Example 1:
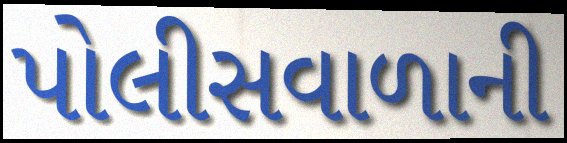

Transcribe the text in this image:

પોલીસવાળાની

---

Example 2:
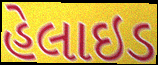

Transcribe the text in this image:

હેલાઇડ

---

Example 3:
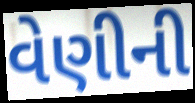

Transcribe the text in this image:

વેણીની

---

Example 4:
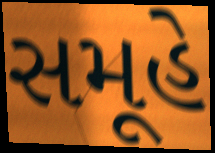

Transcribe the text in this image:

સમૂહે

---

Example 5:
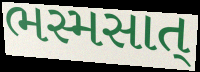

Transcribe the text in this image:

ભસ્મસાત્